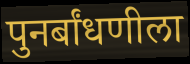
पुनर्बांधणीला